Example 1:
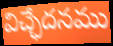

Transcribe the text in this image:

విచ్ఛేదనము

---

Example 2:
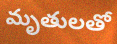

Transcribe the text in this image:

మృతులతో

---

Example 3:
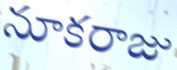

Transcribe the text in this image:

నూకరాజు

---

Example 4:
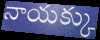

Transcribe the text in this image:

నాయక్కు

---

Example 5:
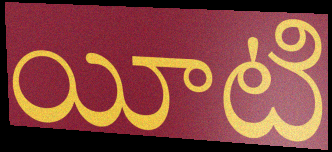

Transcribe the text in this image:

యీటి